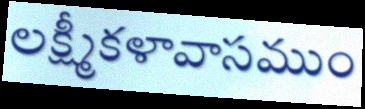
లక్ష్మీకళావాసముం